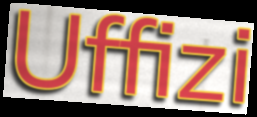
Uffizi